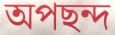
অপছন্দ